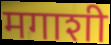
मगाशी